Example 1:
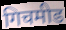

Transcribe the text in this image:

गिचमीड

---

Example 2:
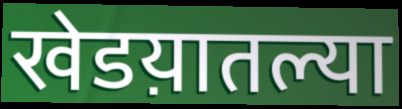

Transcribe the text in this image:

खेडय़ातल्या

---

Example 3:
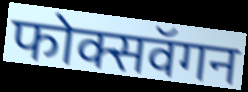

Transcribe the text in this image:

फोक्सवॅगन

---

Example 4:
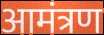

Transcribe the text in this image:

आमंत्रण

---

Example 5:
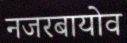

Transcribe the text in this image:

नजरबायोव